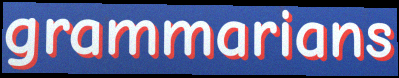
grammarians